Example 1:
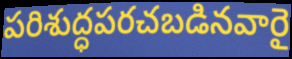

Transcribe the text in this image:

పరిశుద్ధపరచబడినవారై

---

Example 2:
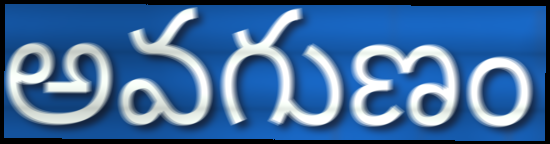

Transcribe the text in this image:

అవగుణం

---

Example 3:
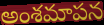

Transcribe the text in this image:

అంశమాపన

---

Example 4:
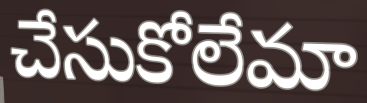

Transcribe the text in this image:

చేసుకోలేమా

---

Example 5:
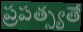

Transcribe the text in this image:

ప్రపత్స్యతే